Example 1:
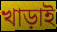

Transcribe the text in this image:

খাড়াই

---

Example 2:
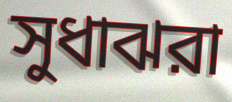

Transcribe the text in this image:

সুধাঝরা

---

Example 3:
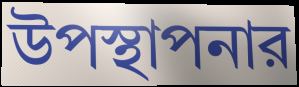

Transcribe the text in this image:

উপস্থাপনার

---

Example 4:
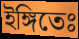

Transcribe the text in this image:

ইঙ্গিতেঃ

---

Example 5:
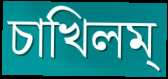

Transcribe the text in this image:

চাখিলম্